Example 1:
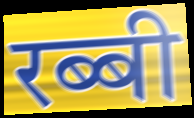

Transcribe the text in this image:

रब्बी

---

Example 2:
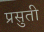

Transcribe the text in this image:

प्रसुती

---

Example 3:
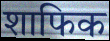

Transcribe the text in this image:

शाफिक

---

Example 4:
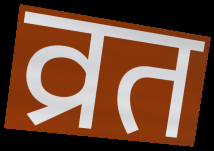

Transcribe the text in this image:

व्रत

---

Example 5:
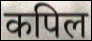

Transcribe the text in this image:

कपिल